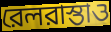
রেলরাস্তাও